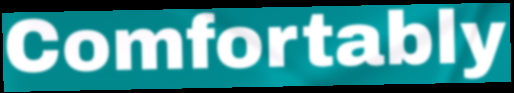
Comfortably